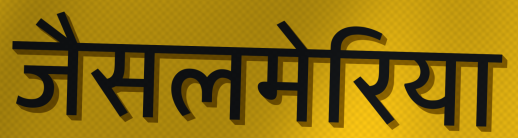
जैसलमेरिया